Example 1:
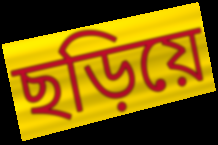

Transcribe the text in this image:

ছড়িয়ে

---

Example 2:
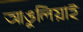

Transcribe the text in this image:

আঙুলিয়াই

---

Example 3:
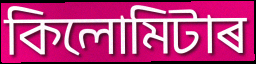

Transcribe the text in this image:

কিলোমিটাৰ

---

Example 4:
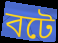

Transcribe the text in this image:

বটে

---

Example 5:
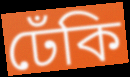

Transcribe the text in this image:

ঢেঁকি